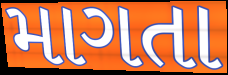
માગતા